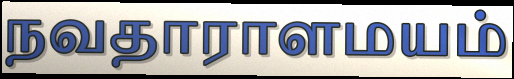
நவதாராளமயம்